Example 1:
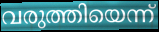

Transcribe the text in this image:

വരുത്തിയെന്ന്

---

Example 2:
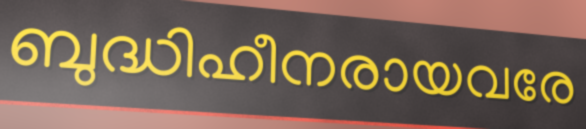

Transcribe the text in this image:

ബുദ്ധിഹീനരായവരേ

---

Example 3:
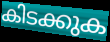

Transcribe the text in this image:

കിടക്കുക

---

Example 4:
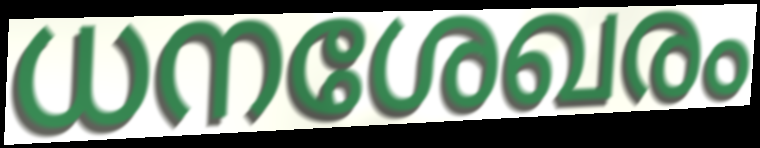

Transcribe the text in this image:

ധനശേഖരം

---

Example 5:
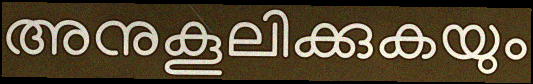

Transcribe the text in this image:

അനുകൂലിക്കുകയും